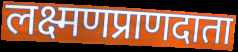
लक्ष्मणप्राणदाता